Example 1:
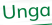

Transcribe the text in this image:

Unga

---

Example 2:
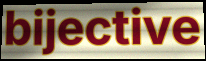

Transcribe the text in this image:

bijective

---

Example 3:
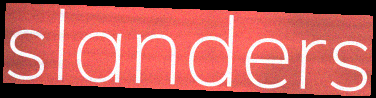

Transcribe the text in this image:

slanders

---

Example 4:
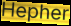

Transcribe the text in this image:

Hepher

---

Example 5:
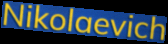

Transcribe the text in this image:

Nikolaevich